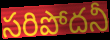
సరిపోదనీ